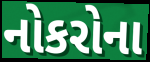
નોકરોના